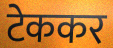
टेककर